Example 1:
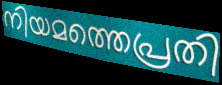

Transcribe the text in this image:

നിയമത്തെപ്രതി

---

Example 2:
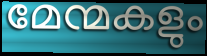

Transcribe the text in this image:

മേന്മകളും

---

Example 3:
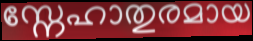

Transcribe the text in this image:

സ്നേഹാതുരമായ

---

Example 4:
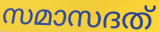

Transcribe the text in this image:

സമാസദത്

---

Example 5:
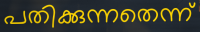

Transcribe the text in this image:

പതിക്കുന്നതെന്ന്